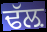
ਢੱਲ਼